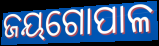
ଜୟଗୋପାଳ